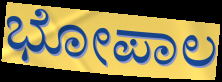
ಭೋಪಾಲ